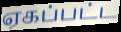
ஏகப்பட்ட